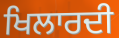
ਖਿਲਾਰਦੀ